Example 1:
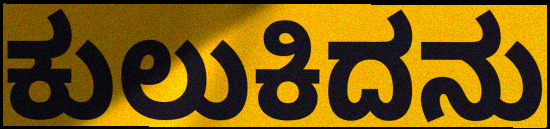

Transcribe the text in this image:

ಕುಲುಕಿದನು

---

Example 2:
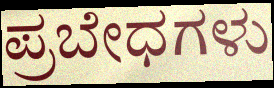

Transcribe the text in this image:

ಪ್ರಬೇಧಗಳು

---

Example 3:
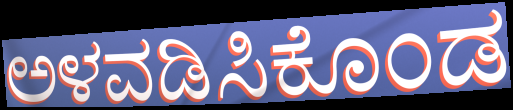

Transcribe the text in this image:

ಅಳವಡಿಸಿಕೊಂಡ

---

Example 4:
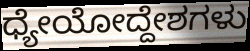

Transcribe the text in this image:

ಧ್ಯೇಯೋದ್ದೇಶಗಳು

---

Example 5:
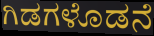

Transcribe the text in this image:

ಗಿಡಗಳೊಡನೆ